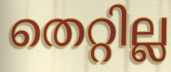
തെറ്റില്ല